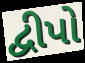
દ્વીપો